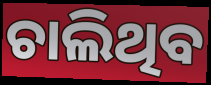
ଚାଲିଥିବ